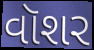
વૉશર